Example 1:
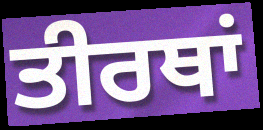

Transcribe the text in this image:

ਤੀਰਥਾਂ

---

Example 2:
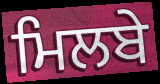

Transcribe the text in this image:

ਮਿਲਬੇ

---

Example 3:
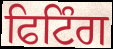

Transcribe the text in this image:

ਫਿਟਿੰਗ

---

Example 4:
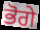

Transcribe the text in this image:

ਭੋਗੇ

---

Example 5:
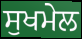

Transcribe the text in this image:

ਸੁਖਮੇਲ